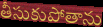
తీసుకుపోతాను